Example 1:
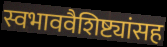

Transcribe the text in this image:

स्वभाववैशिष्ट्यांसह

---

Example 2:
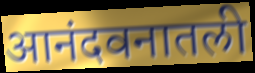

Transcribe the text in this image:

आनंदवनातली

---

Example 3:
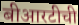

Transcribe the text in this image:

बीआरटीची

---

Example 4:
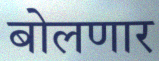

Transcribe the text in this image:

बोलणार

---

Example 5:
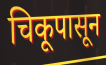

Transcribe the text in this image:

चिकूपासून